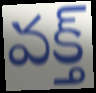
వక్త్